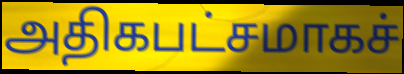
அதிகபட்சமாகச்